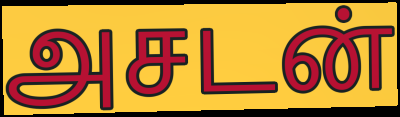
அசடன்